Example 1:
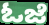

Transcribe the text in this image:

ಓಜೆ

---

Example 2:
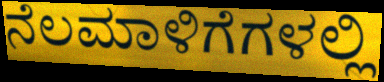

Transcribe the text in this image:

ನೆಲಮಾಳಿಗೆಗಳಲ್ಲಿ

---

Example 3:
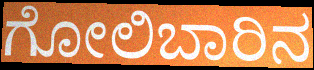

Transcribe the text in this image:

ಗೋಲಿಬಾರಿನ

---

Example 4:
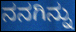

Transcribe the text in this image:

ನನಗಿನ್ನು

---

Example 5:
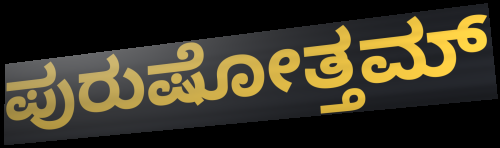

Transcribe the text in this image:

ಪುರುಷೋತ್ತಮ್